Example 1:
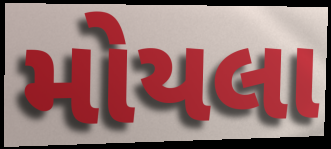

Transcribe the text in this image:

મોયલા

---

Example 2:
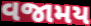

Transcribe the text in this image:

વજામય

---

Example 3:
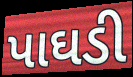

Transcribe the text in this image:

પાઘડી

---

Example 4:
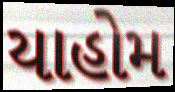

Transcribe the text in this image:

યાહોમ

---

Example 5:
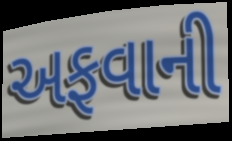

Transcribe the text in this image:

અફવાની